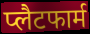
प्लैटफार्म